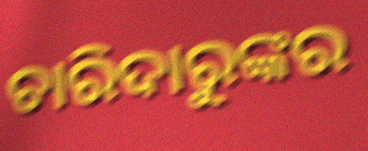
ଚାରିଦାରୁଙ୍କର